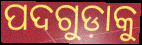
ପଦଗୁଡ଼ାକୁ